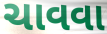
ચાવવા